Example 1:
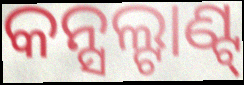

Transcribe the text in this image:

କନ୍ସଲ୍ଟାଣ୍ଟ୍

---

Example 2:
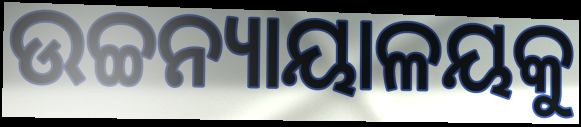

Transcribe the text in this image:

ଉଚ୍ଚନ୍ୟାୟାଳୟକୁ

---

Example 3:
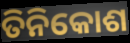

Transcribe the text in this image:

ତିନିକୋଶ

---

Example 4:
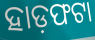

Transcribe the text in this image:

ହାଡ଼ଫଟା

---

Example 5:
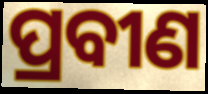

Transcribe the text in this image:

ପ୍ରବୀଣ